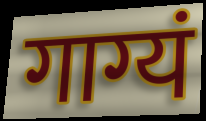
गाग्यं